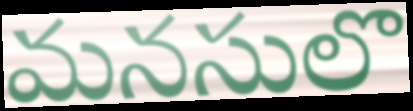
మనసులొ